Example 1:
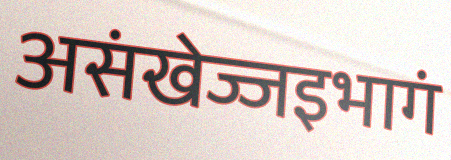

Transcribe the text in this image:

असंखेज्जइभागं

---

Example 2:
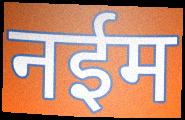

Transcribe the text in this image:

नईम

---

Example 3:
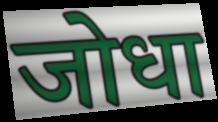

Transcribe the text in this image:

जोधा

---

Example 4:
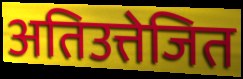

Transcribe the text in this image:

अतिउत्तेजित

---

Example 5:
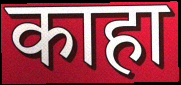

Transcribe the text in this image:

काहा